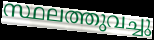
സ്ഥലത്തുവച്ചു